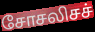
சோசலிசச்